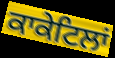
ਕਾਕੇਟਿਲਾਂ